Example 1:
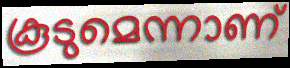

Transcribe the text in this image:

കൂടുമെന്നാണ്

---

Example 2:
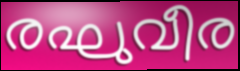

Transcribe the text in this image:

രഘുവീര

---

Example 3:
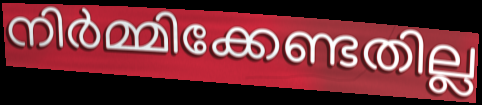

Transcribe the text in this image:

നിർമ്മിക്കേണ്ടതില്ല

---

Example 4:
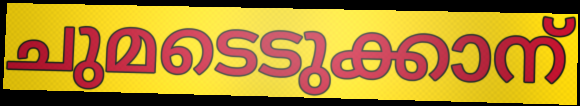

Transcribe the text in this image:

ചുമടെടുക്കാന്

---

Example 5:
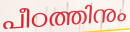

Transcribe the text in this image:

പീഠത്തിനും